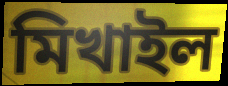
মিখাইল